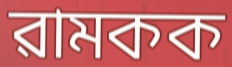
ৱামকক